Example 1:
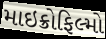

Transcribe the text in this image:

માઇક્રોફિલ્મો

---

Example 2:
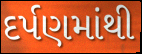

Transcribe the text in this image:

દર્પણમાંથી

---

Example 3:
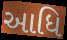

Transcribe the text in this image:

આધિ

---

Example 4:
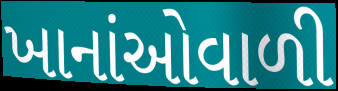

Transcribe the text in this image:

ખાનાંઓવાળી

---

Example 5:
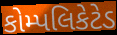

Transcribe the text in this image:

કોમ્પલિકેટેડ